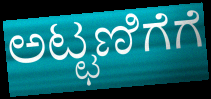
ಅಟ್ಟಣಿಗೆಗೆ